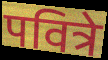
पवित्रे